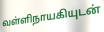
வள்ளிநாயகியுடன்